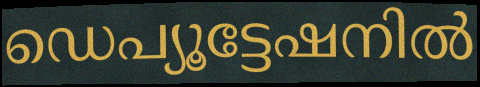
ഡെപ്യൂട്ടേഷനിൽ